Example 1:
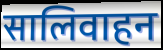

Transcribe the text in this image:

सालिवाहन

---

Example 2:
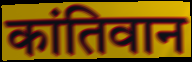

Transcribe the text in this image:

कांतिवान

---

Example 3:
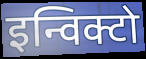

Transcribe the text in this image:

इन्विक्टो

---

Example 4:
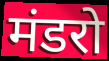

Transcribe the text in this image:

मंडरो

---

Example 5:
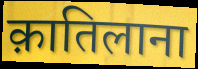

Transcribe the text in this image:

क़ातिलाना